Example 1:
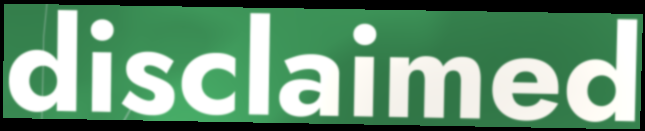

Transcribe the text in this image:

disclaimed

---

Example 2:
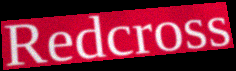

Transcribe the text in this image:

Redcross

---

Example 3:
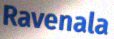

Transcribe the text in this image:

Ravenala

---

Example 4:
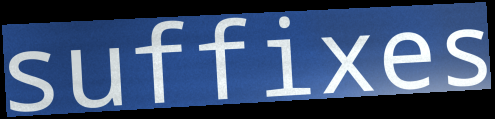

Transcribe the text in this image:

suffixes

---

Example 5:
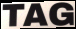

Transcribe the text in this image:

TAG